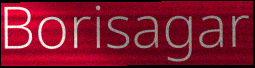
Borisagar